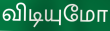
விடியுமோ